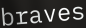
braves